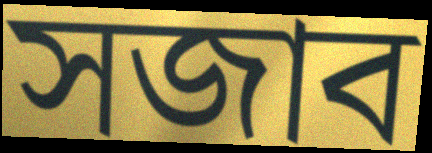
সজাব